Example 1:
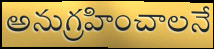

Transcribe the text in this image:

అనుగ్రహించాలనే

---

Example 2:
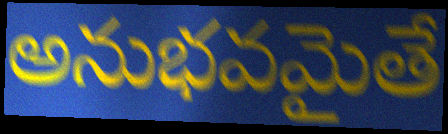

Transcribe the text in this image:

అనుభవమైతే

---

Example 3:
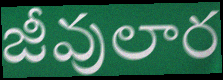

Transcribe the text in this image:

జీవులార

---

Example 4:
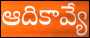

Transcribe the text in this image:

ఆదికావ్యే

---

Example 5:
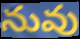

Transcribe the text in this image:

నువు